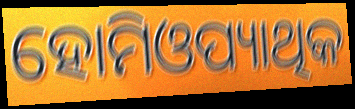
ହୋମିଓପ୍ୟାଥିକ